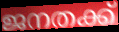
ജനതക്ക്